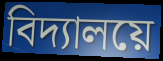
বিদ্যালয়ে